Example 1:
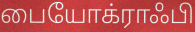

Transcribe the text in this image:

பையோக்ராஃபி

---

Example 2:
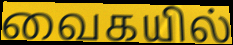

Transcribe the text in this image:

வைகயில்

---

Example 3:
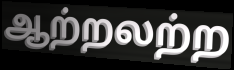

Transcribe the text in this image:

ஆற்றலற்ற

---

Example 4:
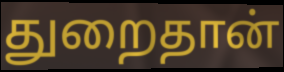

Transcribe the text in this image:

துறைதான்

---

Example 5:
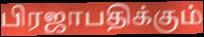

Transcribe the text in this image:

பிரஜாபதிக்கும்